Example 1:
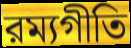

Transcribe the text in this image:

রম্যগীতি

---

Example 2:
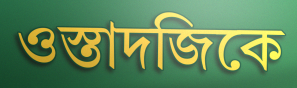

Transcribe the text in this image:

ওস্তাদজিকে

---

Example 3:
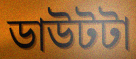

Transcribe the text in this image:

ডাউটটা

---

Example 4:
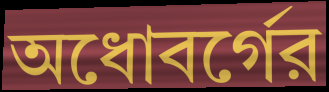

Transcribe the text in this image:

অধোবর্গের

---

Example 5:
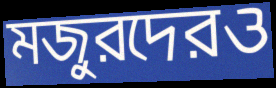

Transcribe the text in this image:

মজুরদেরও